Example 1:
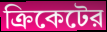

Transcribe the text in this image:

ক্রিকেটের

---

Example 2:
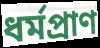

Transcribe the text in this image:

ধর্মপ্রাণ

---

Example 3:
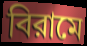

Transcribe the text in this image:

বিরামে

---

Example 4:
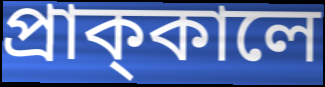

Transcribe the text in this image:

প্রাক্‌কালে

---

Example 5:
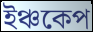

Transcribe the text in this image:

ইঞ্চকেপ